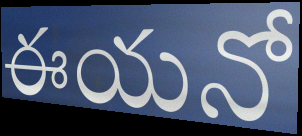
ఈయనో